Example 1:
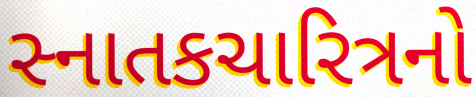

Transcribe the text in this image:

સ્નાતકચારિત્રનો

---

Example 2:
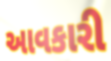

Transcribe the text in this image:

આવકારી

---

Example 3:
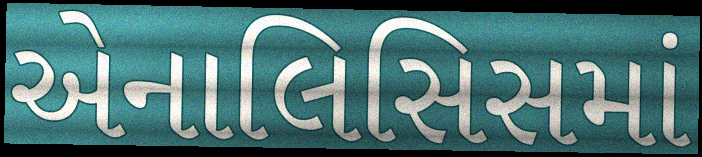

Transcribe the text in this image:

એનાલિસિસમાં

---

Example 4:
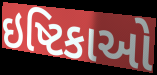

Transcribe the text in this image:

ઇષ્ટિકાઓ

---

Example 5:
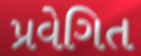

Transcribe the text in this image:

પ્રવેગિત